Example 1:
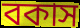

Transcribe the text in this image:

বকাস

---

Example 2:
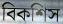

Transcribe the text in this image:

বিকশিস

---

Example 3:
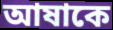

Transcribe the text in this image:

আষাকে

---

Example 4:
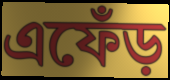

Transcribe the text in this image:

এফেঁড়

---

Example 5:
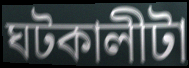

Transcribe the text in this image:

ঘটকালীটা